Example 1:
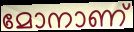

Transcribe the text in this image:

മോനാണ്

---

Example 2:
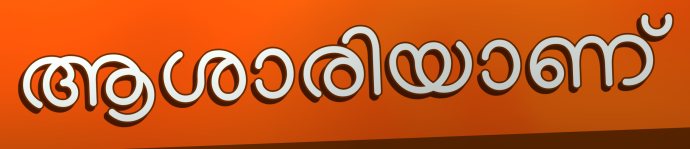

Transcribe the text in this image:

ആശാരിയാണ്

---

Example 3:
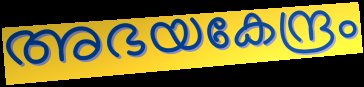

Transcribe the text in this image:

അഭയകേന്ദ്രം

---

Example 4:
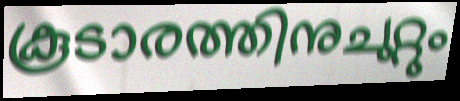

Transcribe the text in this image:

കൂടാരത്തിനുചുറ്റും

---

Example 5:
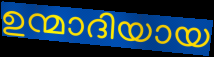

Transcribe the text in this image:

ഉന്മാദിയായ